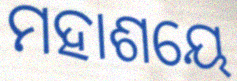
ମହାଶୟେ